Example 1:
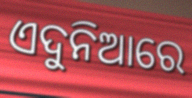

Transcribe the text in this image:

ଏଦୁନିଆରେ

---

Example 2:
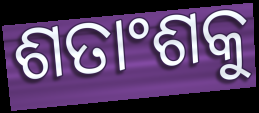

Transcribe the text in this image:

ଶତାଂଶକୁ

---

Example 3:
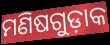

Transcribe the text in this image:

ମଣିଷଗୁଡ଼ାକ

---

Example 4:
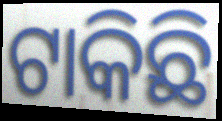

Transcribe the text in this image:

ଟାକିଛି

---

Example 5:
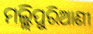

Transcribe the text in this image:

ମଲ୍ଲିପୁରିଆଣୀ